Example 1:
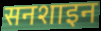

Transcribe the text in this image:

सनशाइन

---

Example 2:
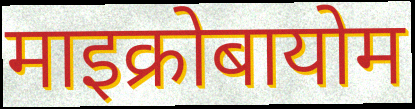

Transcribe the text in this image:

माइक्रोबायोम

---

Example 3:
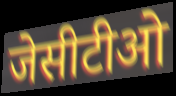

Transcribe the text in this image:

जेसीटीओ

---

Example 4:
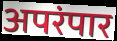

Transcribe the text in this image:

अपरंपार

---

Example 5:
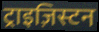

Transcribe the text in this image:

ट्राइज़िस्टन